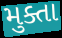
મુક્તા